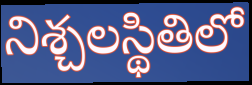
నిశ్చలస్థితిలో